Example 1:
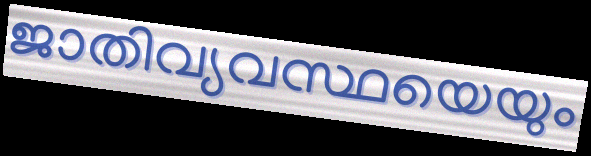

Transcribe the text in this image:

ജാതിവ്യവസ്ഥയെയും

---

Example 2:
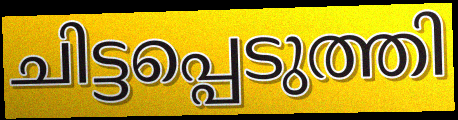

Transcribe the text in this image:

ചിട്ടപ്പെടുത്തി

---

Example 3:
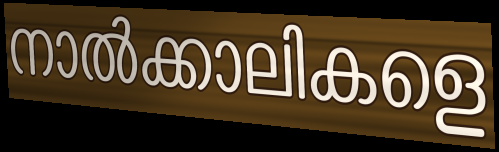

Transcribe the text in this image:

നാൽക്കാലികളെ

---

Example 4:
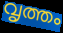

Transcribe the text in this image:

വൃത്തം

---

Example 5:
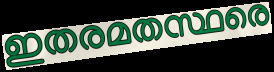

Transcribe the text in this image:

ഇതരമതസ്ഥരെ